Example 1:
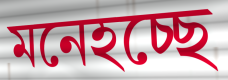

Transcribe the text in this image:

মনেহচ্ছে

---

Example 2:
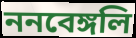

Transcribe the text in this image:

ননবেঙ্গলি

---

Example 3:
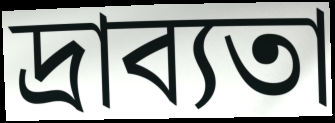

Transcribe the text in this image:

দ্রাব্যতা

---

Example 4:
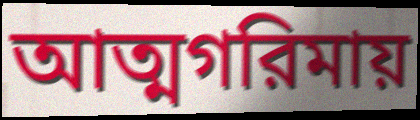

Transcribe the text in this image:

আত্মগরিমায়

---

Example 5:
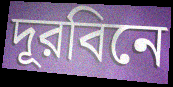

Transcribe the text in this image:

দূরবিনে